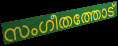
സംഗീതത്തോട്